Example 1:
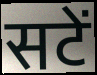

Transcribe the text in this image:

सटें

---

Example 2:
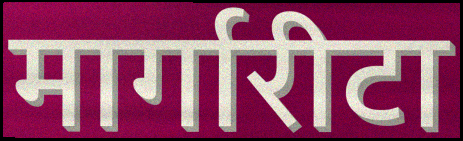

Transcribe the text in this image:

मार्गारीटा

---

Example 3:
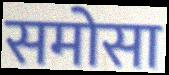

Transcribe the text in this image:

समोसा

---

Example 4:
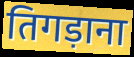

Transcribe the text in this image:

तिगड़ाना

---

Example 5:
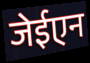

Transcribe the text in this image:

जेईएन